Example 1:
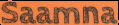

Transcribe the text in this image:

Saamna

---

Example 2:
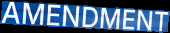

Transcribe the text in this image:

AMENDMENT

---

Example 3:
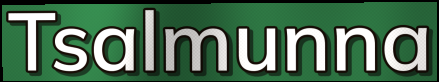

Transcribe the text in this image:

Tsalmunna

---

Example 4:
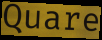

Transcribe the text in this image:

Quare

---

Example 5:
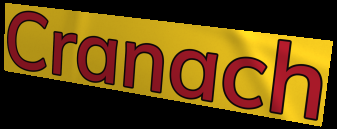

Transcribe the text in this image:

Cranach